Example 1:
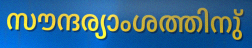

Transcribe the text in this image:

സൗന്ദര്യാംശത്തിനു്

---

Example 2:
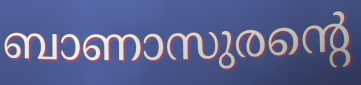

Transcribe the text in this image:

ബാണാസുരന്റെ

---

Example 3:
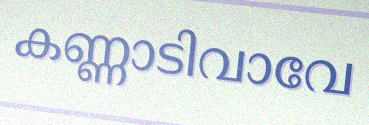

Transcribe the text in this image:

കണ്ണാടിവാവേ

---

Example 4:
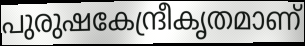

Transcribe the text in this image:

പുരുഷകേന്ദ്രീകൃതമാണ്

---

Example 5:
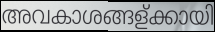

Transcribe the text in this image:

അവകാശങ്ങള്ക്കായി